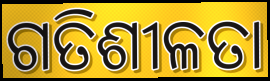
ଗତିଶୀଳତା